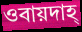
ওবায়দাহ্